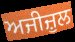
ਅਜੀਜ਼ੁਲ